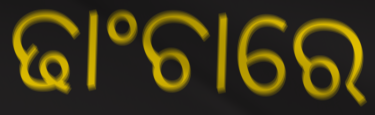
ଢାଂଚାରେ